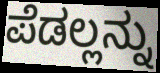
ಪೆಡಲ್ಲನ್ನು